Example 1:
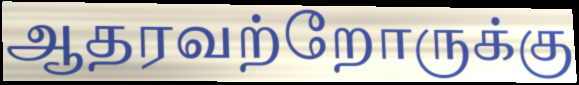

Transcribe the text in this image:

ஆதரவற்றோருக்கு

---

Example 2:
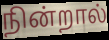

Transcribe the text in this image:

நின்றால்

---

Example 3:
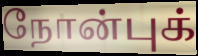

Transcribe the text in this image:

நோன்புக்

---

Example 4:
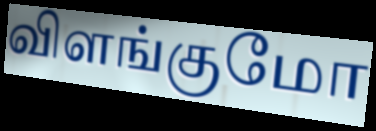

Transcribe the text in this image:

விளங்குமோ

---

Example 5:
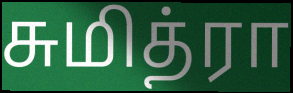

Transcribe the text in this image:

சுமித்ரா